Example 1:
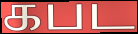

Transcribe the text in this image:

கபட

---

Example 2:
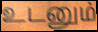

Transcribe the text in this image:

உடனும்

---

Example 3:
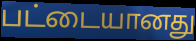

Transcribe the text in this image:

பட்டையானது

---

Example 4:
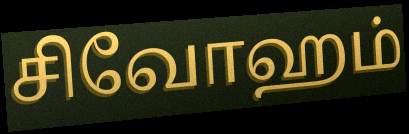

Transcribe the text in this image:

சிவோஹம்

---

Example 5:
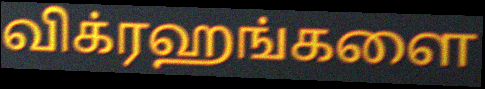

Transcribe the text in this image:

விக்ரஹங்களை